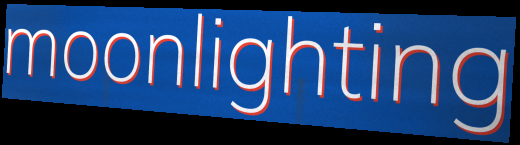
moonlighting